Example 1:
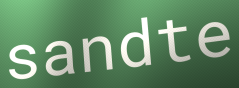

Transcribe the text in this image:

sandte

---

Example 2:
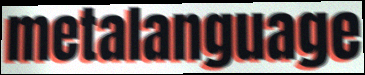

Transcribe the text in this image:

metalanguage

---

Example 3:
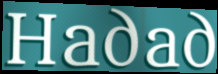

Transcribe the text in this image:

Hadad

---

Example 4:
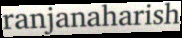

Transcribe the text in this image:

ranjanaharish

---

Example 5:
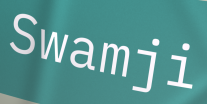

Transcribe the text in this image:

Swamji